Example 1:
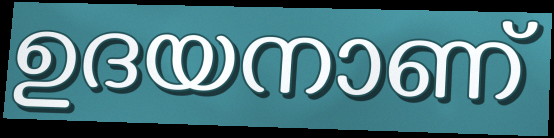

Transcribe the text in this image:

ഉദയനാണ്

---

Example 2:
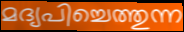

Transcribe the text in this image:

മദ്യപിച്ചെത്തുന്ന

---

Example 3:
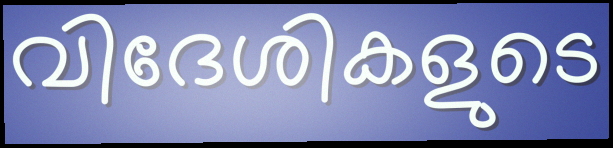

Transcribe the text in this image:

വിദേശികളുടെ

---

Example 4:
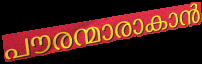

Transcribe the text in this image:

പൗരന്മാരാകാൻ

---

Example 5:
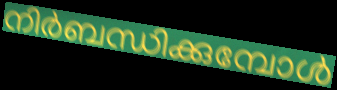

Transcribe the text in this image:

നിർബന്ധിക്കുമ്പോൾ